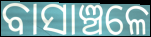
ବାସାଞ୍ଚଳେ